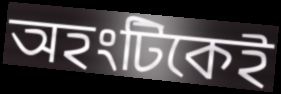
অহংটিকেই